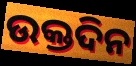
ଉକ୍ତଦିନ